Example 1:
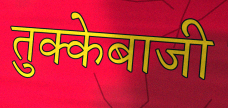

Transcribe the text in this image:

तुक्केबाजी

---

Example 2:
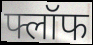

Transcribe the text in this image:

फ्लॉफ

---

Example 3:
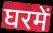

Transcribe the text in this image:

घरमें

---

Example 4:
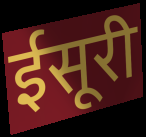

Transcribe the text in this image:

ईसूरी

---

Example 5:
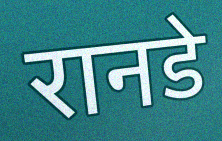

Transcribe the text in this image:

रानडे